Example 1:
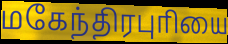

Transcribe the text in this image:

மகேந்திரபுரியை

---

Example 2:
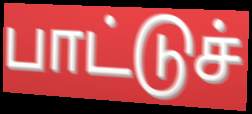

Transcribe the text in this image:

பாட்டுச்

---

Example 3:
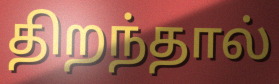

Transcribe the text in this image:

திறந்தால்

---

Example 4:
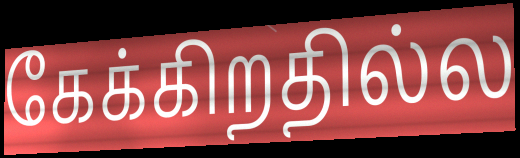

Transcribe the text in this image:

கேக்கிறதில்ல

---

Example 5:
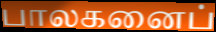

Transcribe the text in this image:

பாலகனைப்